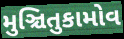
મુઞ્ચિતુકામોવ